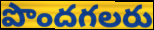
పొందగలరు